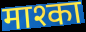
माश्का